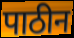
पाठीन